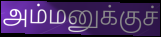
அம்மனுக்குச்